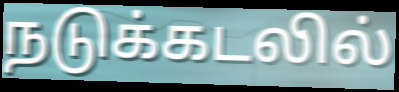
நடுக்கடலில்